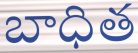
బాధిత